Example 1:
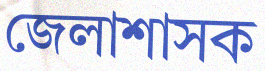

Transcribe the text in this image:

জেলাশাসক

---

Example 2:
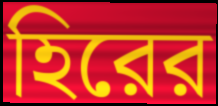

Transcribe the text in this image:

হিরের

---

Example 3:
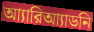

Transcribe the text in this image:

আ্যারিআ্যাডনি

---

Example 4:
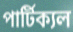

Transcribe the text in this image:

পার্টিক্যল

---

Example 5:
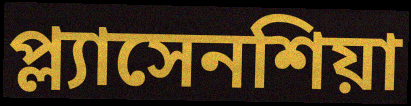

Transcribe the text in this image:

প্ল্যাসেনশিয়া